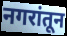
नगरांतून